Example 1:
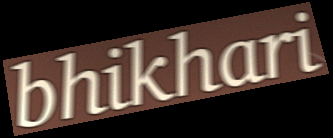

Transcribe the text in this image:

bhikhari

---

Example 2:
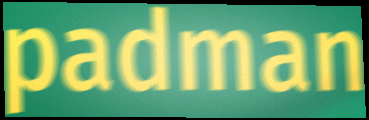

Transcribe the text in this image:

padman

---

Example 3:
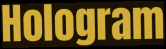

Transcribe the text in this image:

Hologram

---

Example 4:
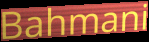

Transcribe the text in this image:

Bahmani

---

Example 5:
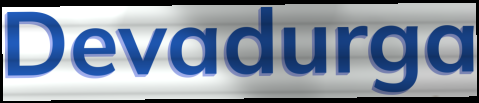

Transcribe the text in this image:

Devadurga